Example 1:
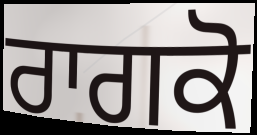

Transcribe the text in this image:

ਰਾਗਕੋ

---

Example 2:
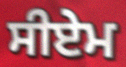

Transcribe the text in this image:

ਸੀਏਮ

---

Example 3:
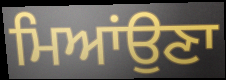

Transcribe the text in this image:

ਮਿਆਂਉਣਾ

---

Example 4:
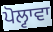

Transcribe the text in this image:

ਪੋਲ੍ਟਾਵਾ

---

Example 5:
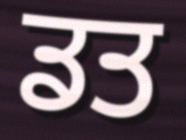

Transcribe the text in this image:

ਡਤ